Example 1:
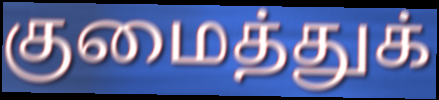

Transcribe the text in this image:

குமைத்துக்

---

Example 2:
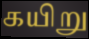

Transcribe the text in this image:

கயிறு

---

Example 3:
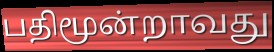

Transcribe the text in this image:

பதிமூன்றாவது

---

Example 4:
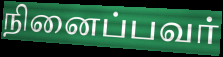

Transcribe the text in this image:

நினைப்பவர்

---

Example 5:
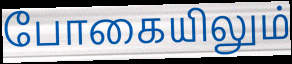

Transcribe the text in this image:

போகையிலும்